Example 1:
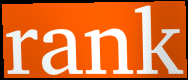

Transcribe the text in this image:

rank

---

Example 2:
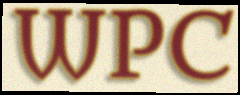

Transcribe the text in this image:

WPC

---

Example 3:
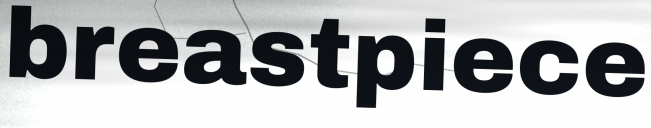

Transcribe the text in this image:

breastpiece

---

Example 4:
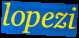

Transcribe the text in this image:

lopezi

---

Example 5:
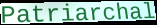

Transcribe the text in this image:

Patriarchal